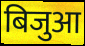
बिजुआ